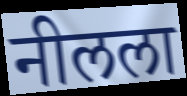
नीलला